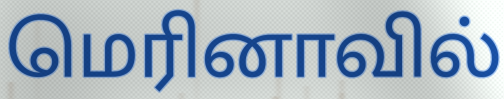
மெரினாவில்